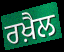
ਰਖ਼ੈਲ